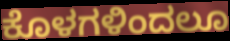
ಕೊಳಗಳಿಂದಲೂ